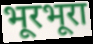
भूरभूरा